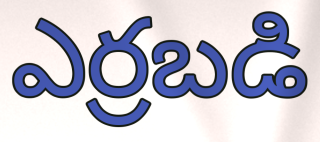
ఎర్రబడి